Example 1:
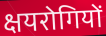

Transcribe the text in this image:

क्षयरोगियों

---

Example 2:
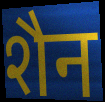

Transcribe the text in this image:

शैन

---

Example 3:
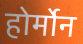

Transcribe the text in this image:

होर्मोन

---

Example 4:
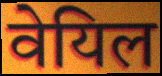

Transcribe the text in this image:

वेयिल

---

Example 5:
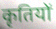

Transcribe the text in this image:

कृतियों